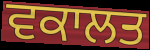
ਵਕਾਲਤ